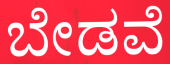
ಬೇಡವೆ